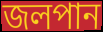
জলপান